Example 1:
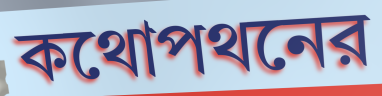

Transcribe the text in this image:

কথোপথনের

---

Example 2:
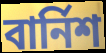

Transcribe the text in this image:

বার্নিশ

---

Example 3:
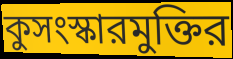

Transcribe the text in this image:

কুসংস্কারমুক্তির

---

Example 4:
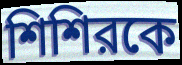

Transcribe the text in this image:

শিশিরকে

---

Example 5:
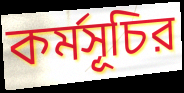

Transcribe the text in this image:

কর্মসূচির